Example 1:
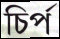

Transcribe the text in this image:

চির্প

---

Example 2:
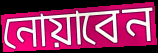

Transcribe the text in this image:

নোয়াবেন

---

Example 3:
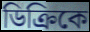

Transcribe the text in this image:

ডিক্রিকে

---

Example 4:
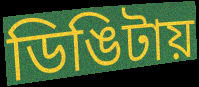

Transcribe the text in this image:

ডিঙিটায়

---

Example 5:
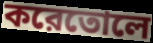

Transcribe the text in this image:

করেতোলে